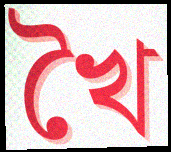
খৈ